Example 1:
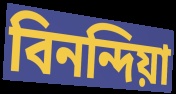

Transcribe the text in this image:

বিনন্দিয়া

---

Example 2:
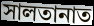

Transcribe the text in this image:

সালতানাত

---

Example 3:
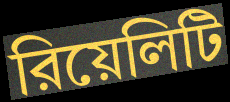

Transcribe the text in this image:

রিয়েলিটি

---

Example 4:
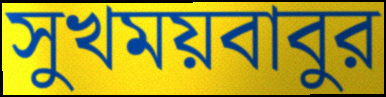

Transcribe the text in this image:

সুখময়বাবুর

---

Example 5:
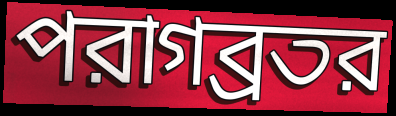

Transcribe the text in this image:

পরাগব্রতর